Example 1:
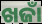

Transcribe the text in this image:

ଖଜାଁ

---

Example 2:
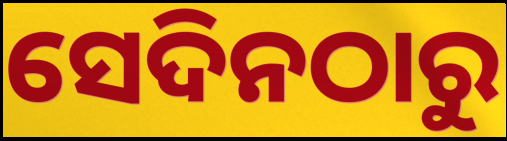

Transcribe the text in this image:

ସେଦିନଠାରୁ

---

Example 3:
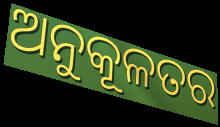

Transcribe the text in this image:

ଅନୁକୂଳତର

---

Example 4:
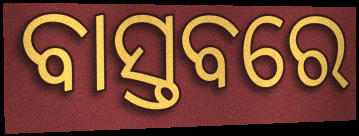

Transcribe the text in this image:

ବାସ୍ତବରେ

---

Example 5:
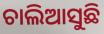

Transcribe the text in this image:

ଚାଲିଆସୁଛି